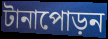
টানাপোড়ন